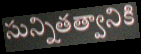
సున్నితత్వానికి